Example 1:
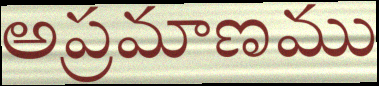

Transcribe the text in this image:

అప్రమాణము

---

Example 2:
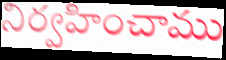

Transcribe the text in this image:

నిర్వహించాము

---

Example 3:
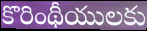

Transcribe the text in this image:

కొరింథీయులకు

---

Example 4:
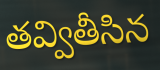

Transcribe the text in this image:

తవ్వితీసిన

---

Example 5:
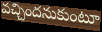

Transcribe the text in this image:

వచ్చిందనుకుంటూ